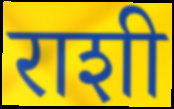
राशी